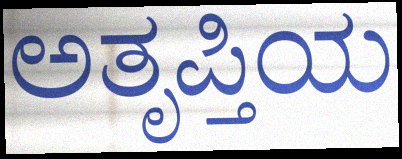
ಅತೃಪ್ತಿಯ